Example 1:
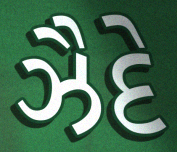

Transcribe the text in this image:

ઝૈદે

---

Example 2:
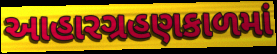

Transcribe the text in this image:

આહારગ્રહણકાળમાં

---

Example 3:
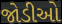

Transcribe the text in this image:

જોડીઓ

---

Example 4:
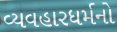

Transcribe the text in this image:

વ્યવહારધર્મનો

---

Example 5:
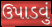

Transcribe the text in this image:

ઉપાડવું